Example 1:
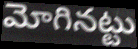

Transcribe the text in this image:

మోగినట్టు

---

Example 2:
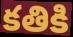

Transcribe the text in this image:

కతికి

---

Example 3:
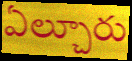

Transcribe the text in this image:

ఏల్చూరు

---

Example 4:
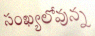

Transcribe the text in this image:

సంఖ్యలోవున్న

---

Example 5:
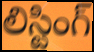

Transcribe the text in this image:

లిస్టింగ్